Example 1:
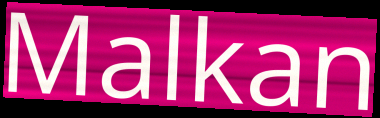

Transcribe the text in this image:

Malkan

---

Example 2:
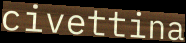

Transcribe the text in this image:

civettina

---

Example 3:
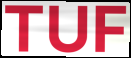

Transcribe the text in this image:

TUF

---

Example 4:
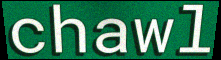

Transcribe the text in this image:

chawl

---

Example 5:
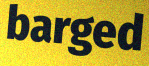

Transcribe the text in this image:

barged